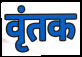
वृंतक